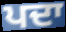
ਪਦਾ